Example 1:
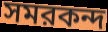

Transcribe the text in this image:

সমরকন্দ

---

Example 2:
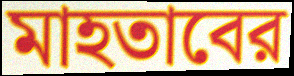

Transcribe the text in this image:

মাহতাবের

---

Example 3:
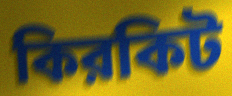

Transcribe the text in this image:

কিরকিট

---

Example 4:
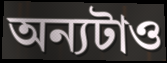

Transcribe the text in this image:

অন্যটাও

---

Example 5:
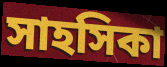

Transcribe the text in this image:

সাহসিকা